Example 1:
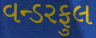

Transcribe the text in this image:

વન્ડરફુલ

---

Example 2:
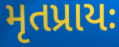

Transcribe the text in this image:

મૃતપ્રાયઃ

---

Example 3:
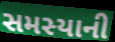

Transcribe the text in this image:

સમસ્યાની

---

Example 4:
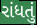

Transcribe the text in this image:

રાંધતું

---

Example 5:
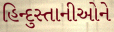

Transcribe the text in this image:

હિન્દુસ્તાનીઓને